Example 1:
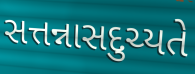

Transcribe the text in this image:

સત્તન્નાસદુચ્યતે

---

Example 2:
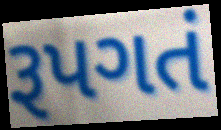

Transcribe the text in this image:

રૂપગતં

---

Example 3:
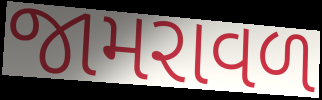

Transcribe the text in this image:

જામરાવળ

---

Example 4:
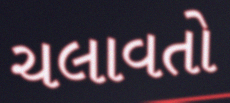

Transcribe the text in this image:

ચલાવતો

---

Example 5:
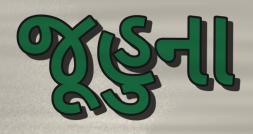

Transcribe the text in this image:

જૂહુના